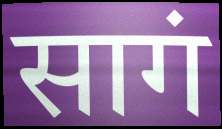
सागं